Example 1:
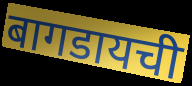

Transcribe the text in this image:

बागडायची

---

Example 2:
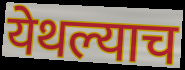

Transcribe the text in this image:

येथल्याच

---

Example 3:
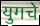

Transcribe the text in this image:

युगचे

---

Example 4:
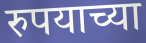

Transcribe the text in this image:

रुपयाच्या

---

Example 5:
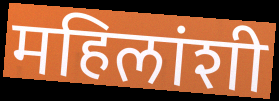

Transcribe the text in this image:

महिलांशी